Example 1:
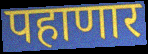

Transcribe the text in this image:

पहाणार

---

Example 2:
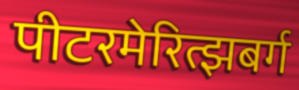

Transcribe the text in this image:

पीटरमेरित्झबर्ग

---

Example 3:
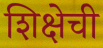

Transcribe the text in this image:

शिक्षेची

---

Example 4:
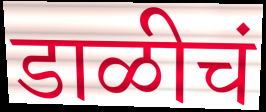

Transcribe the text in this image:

डाळीचं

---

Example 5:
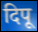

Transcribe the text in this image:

दिपू